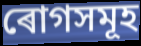
ৰোগসমূহ